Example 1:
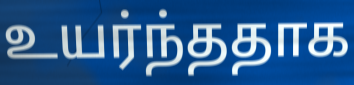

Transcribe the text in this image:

உயர்ந்ததாக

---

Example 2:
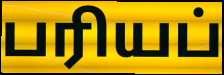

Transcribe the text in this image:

பரியப்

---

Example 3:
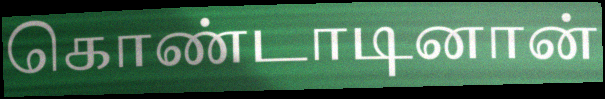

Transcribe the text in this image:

கொண்டாடினான்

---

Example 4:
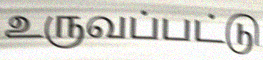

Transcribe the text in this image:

உருவப்பட்டு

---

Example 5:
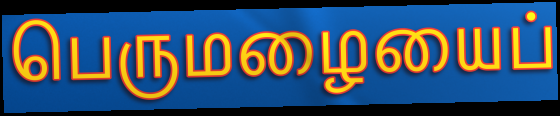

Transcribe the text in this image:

பெருமழையைப்